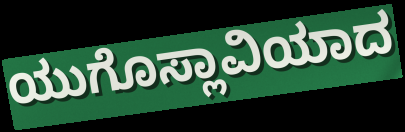
ಯುಗೊಸ್ಲಾವಿಯಾದ